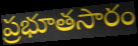
ప్రభూతసారం